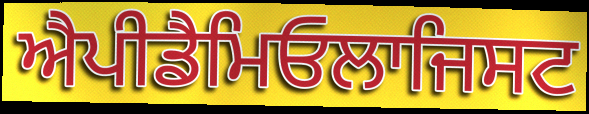
ਐਪੀਡੈਮਿਓਲਾਜਿਸਟ